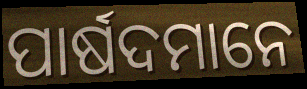
ପାର୍ଷଦମାନେ